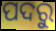
ପଦରୁ